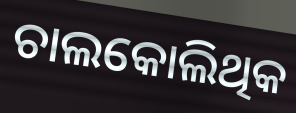
ଚାଲକୋଲିଥିକ